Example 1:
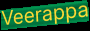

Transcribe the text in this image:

Veerappa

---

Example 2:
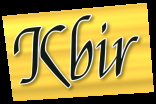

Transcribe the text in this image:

Kbir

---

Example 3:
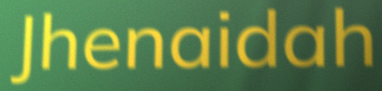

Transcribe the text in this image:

Jhenaidah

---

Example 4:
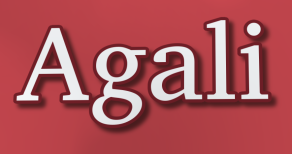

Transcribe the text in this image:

Agali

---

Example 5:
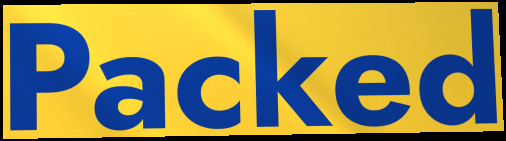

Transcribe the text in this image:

Packed